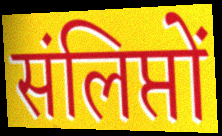
संलिप्तों